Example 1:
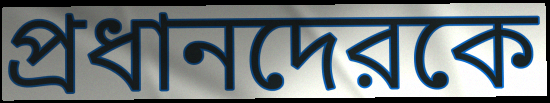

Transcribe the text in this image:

প্রধানদেরকে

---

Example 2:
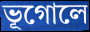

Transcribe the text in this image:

ভূগোলে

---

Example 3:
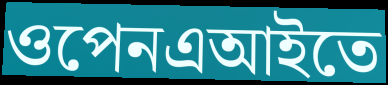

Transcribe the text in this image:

ওপেনএআইতে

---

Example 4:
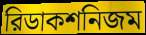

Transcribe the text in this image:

রিডাকশনিজম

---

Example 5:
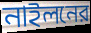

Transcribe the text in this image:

নাইলনের